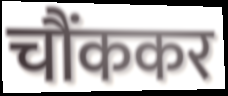
चौंककर